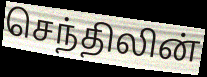
செந்திலின்